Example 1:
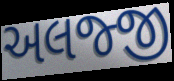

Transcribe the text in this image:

અલજ્જી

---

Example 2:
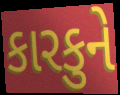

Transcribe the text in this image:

કારકુને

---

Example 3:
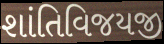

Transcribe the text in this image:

શાંતિવિજયજી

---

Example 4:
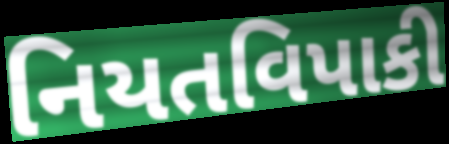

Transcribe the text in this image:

નિયતવિપાકી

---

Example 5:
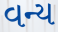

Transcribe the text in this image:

વન્ય